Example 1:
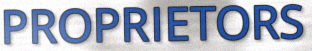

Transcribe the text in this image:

PROPRIETORS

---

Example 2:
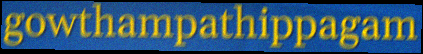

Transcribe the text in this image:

gowthampathippagam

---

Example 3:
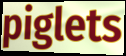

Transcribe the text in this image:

piglets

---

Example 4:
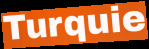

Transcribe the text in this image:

Turquie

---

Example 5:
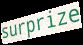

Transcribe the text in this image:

surprize